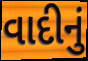
વાદીનું